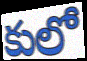
కులో